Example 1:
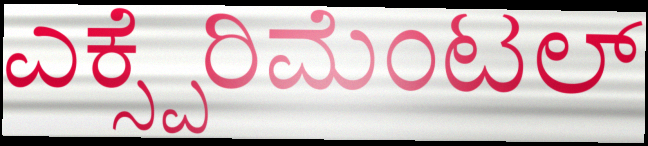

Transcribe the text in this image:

ಎಕ್ಸ್ಪೆರಿಮೆಂಟಲ್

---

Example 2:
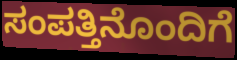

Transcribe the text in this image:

ಸಂಪತ್ತಿನೊಂದಿಗೆ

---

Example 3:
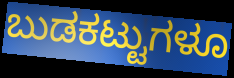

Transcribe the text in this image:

ಬುಡಕಟ್ಟುಗಳೂ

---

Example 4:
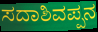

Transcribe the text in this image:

ಸದಾಶಿವಪ್ಪನ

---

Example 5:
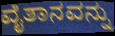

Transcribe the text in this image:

ವೈತಾನವನ್ನು